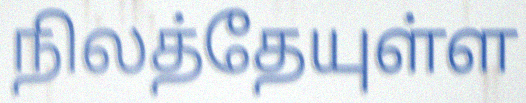
நிலத்தேயுள்ள